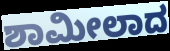
ಶಾಮೀಲಾದ